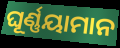
ଘୂର୍ଣ୍ଣୟାମାନ